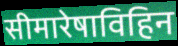
सीमारेषाविहिन